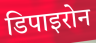
डिपाइरोन